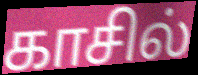
காசில்